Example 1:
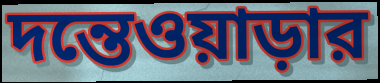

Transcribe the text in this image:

দন্তেওয়াড়ার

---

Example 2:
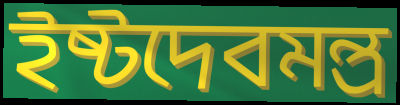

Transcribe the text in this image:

ইষ্টদেবমন্ত্র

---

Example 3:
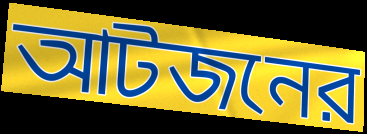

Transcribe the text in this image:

আটজনের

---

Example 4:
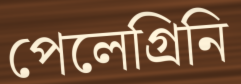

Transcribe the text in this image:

পেলেগ্রিনি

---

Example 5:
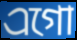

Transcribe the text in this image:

এগো